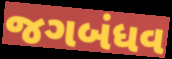
જગબંધવ